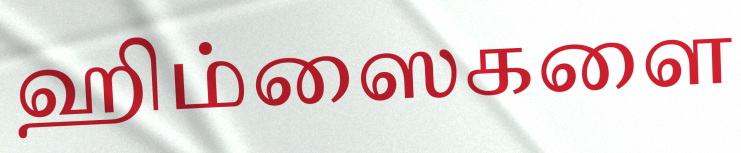
ஹிம்ஸைகளை